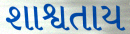
શાશ્વતાય